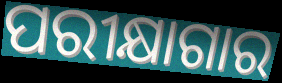
ପରୀକ୍ଷାଗାର